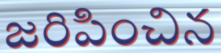
జరిపించిన